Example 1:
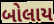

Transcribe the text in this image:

બોલાય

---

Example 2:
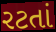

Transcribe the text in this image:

રટતાં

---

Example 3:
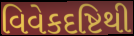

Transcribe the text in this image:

વિવેકદષ્ટિથી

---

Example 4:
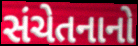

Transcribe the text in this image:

સંચેતનાનો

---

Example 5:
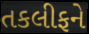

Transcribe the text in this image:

તકલીફને